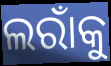
ଲରାଁକୁ